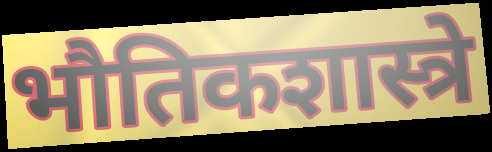
भौतिकशास्त्रे